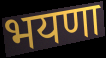
भयणा